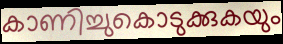
കാണിച്ചുകൊടുക്കുകയും